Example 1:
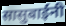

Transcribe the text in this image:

सासुबाईंनी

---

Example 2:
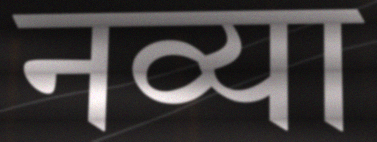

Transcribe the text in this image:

नव्या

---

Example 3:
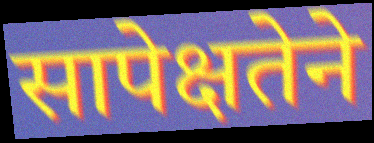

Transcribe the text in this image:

सापेक्षतेने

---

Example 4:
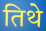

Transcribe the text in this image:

तिथे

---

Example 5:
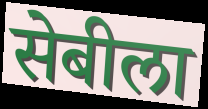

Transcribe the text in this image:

सेबीला